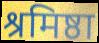
श्रमिष्ठा